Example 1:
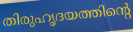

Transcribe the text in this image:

തിരുഹൃദയത്തിന്റെ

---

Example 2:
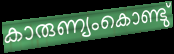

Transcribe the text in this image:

കാരുണ്യംകൊണ്ടു്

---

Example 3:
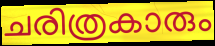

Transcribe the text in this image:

ചരിത്രകാരും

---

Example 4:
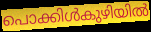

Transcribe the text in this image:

പൊക്കിൾകുഴിയിൽ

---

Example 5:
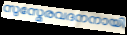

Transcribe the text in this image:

സുസ്മേരവദനനായി